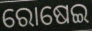
ରୋଷେଇ